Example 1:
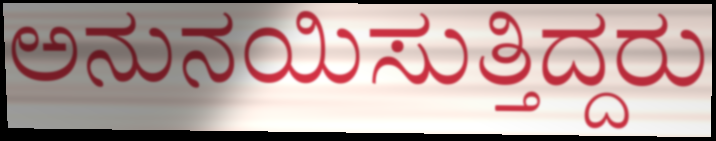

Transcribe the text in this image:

ಅನುನಯಿಸುತ್ತಿದ್ದರು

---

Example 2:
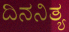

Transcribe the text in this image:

ದಿನನಿತ್ಯ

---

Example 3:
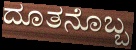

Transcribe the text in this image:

ದೂತನೊಬ್ಬ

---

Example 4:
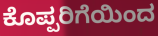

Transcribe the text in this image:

ಕೊಪ್ಪರಿಗೆಯಿಂದ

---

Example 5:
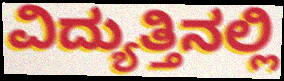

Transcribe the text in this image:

ವಿದ್ಯುತ್ತಿನಲ್ಲಿ